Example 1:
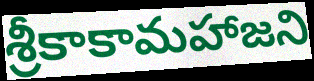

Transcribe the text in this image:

శ్రీకాకామహాజని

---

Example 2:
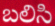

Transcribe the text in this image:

బలిసి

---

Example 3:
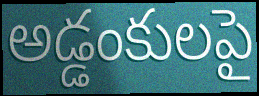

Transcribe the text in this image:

అడ్డంకులపై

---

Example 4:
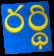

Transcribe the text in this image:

రర్థి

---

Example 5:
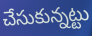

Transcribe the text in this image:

చేసుకున్నట్టు